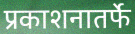
प्रकाशनातर्फे